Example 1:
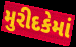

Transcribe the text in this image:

મુરીદકેમાં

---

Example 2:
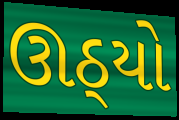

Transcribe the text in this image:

ઊઠ્યો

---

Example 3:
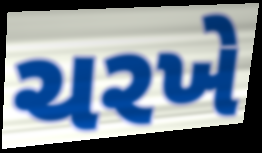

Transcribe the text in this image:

ચરખે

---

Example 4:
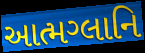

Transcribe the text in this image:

આત્મગ્લાનિ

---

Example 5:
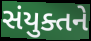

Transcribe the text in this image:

સંયુક્તને